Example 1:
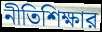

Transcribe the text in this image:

নীতিশিক্ষার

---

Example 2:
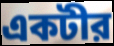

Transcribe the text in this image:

একটীর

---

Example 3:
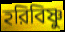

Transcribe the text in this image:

হরিবিষ্ণু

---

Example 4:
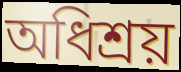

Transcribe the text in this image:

অধিশ্রয়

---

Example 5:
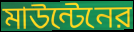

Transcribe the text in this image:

মাউন্টেনের